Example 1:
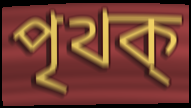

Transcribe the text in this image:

পৃথক্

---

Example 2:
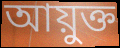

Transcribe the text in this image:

আয়ুক্ত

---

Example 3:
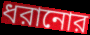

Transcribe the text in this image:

ধরানোর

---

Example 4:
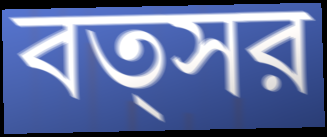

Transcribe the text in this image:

বত্সর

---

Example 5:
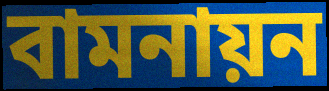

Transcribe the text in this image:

বামনায়ন